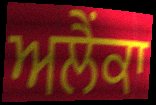
ਅਲੈਂਕਾ